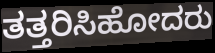
ತತ್ತರಿಸಿಹೋದರು